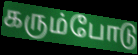
கரும்போடு